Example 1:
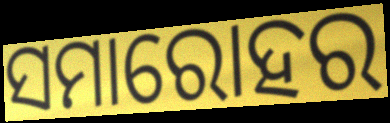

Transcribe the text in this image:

ସମାରୋହର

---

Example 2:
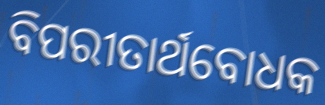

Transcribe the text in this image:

ବିପରୀତାର୍ଥବୋଧକ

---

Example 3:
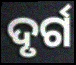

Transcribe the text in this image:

ଦୃର୍ଗ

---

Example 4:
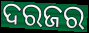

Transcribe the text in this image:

ଦରଜର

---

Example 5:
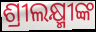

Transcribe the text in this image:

ଶ୍ରୀଲକ୍ଷ୍ମୀଙ୍କ